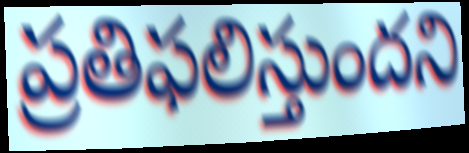
ప్రతిఫలిస్తుందని